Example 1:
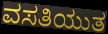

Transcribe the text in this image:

ವಸತಿಯುತ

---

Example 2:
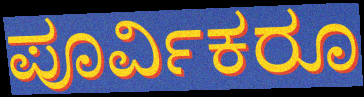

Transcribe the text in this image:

ಪೂರ್ವಿಕರೂ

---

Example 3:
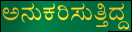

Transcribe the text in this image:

ಅನುಕರಿಸುತ್ತಿದ್ದ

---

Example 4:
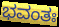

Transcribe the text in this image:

ಭವಂತಃ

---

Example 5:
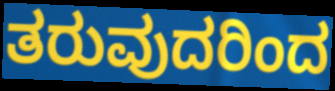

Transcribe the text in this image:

ತರುವುದರಿಂದ